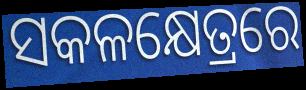
ସକଳକ୍ଷେତ୍ରରେ